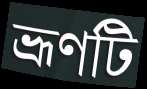
ভ্রূণটি